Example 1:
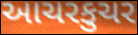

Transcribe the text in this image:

આચરકુચર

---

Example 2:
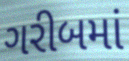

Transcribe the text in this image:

ગરીબમાં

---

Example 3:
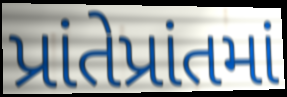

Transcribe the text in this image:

પ્રાંતેપ્રાંતમાં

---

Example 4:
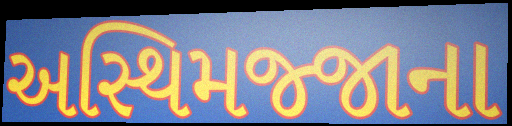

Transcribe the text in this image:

અસ્થિમજ્જાના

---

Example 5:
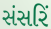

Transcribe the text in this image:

સંસરિં